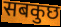
सबकुछ